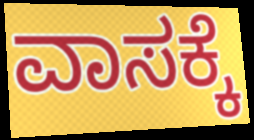
ವಾಸಕ್ಕೆ